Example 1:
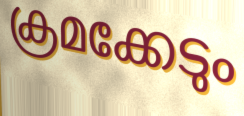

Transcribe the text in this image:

ക്രമക്കേടും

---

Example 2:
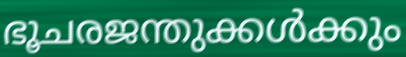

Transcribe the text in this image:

ഭൂചരജന്തുക്കൾക്കും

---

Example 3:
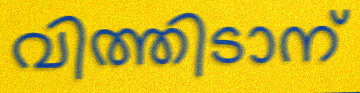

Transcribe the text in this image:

വിത്തിടാന്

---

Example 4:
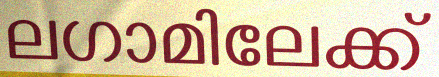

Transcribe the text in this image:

ലഗാമിലേക്ക്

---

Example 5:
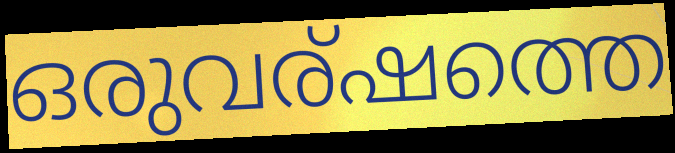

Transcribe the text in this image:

ഒരുവര്ഷത്തെ